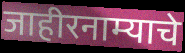
जाहीरनाम्याचे